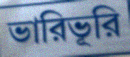
ভারিভূরি